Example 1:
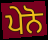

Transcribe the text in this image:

ਪੇਨੋ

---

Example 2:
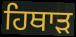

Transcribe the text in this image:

ਹਿਥਾੜ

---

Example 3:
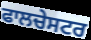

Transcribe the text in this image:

ਫਾਲਚੇਸਟਰ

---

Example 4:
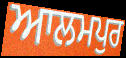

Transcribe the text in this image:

ਆਲਮਪੁਰ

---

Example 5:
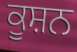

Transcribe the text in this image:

ਕੂਸ਼ਨ